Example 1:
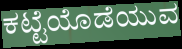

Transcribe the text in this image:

ಕಟ್ಟೆಯೊಡೆಯುವ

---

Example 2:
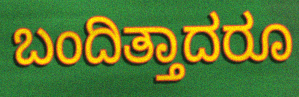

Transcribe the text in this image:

ಬಂದಿತ್ತಾದರೂ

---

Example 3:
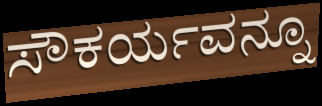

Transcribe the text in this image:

ಸೌಕರ್ಯವನ್ನೂ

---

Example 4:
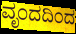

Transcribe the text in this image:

ವೃಂದದಿಂದ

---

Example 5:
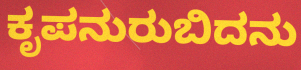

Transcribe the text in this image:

ಕೃಪನುರುಬಿದನು